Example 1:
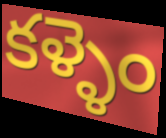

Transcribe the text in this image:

కళ్ళెం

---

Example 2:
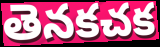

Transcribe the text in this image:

తెనకచక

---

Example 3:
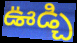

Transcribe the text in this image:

ఊడ్చి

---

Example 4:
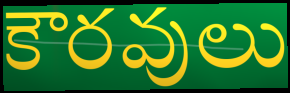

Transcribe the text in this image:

కౌరవులు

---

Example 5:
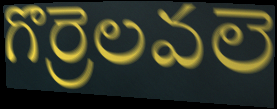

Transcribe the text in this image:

గొర్రెలవలె